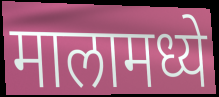
मालामध्ये